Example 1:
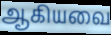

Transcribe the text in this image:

ஆகியவை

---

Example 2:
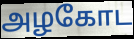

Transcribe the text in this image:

அழகோட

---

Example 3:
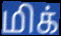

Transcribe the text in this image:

மிக்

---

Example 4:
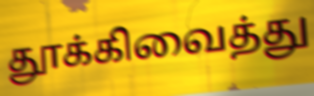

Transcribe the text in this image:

தூக்கிவைத்து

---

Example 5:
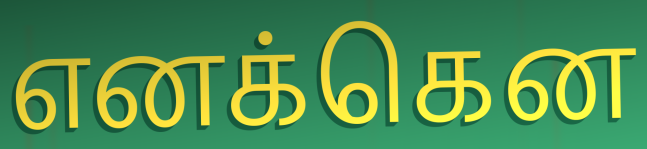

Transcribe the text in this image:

எனக்கென